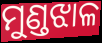
ମୁଣ୍ଡଝାଳ